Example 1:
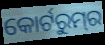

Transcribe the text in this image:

କୋର୍ଟରୁମ୍‌ର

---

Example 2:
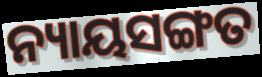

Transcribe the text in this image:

ନ୍ୟାୟସଙ୍ଗତ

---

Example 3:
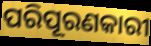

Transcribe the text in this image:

ପରିପୂରଣକାରୀ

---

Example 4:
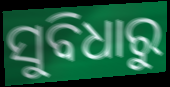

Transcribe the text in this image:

ସୁବିଧାରୁ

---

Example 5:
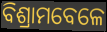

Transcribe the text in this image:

ବିଶ୍ରାମବେଳେ